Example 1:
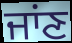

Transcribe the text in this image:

ਜਾਂਣ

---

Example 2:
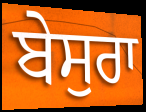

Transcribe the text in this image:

ਬੇਸੁਰਾ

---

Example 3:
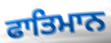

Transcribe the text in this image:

ਫਾਤਿਮਾਨ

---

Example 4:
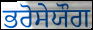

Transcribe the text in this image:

ਭਰੋਸੇਯੌਗ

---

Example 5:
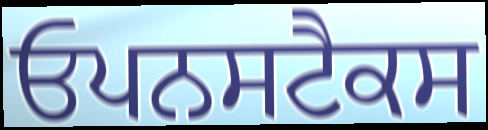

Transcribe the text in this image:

ਓਪਨਸਟੈਕਸ